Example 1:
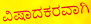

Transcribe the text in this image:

ವಿಷಾದಕರವಾಗಿ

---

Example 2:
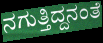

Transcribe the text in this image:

ನಗುತ್ತಿದ್ದನಂತೆ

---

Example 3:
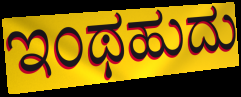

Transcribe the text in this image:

ಇಂಥಹುದು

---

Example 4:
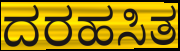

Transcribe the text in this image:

ದರಹಸಿತ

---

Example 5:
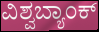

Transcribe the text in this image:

ವಿಶ್ವಬ್ಯಾಂಕ್